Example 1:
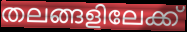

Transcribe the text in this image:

തലങ്ങളിലേക്ക്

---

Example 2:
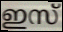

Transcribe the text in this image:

ഇസ്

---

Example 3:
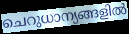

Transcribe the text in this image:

ചെറുധാന്യങ്ങളിൽ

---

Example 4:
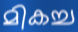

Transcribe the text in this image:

മികച്ച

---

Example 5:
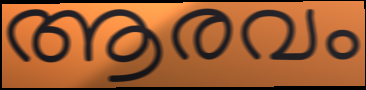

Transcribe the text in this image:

ആരവം